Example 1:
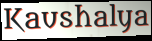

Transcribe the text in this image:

Kaushalya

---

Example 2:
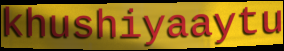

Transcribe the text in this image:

khushiyaaytu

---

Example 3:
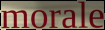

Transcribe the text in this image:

morale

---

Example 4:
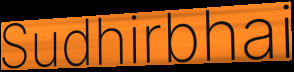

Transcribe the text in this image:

Sudhirbhai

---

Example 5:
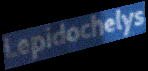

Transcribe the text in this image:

Lepidochelys